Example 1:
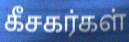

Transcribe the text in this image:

கீசகர்கள்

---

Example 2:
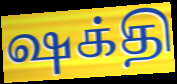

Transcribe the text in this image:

ஷக்தி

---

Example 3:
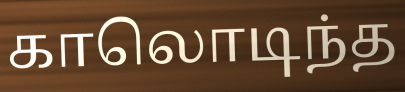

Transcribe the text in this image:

காலொடிந்த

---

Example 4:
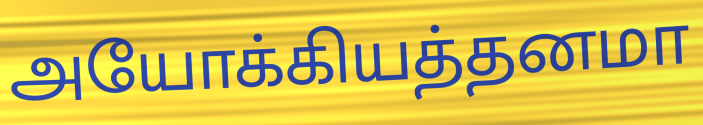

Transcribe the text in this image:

அயோக்கியத்தனமா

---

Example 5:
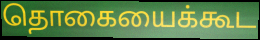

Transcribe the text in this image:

தொகையைக்கூட